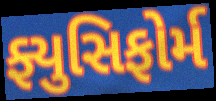
ફ્યુસિફોર્મ